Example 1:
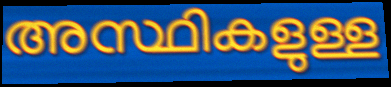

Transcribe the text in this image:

അസ്ഥികളുള്ള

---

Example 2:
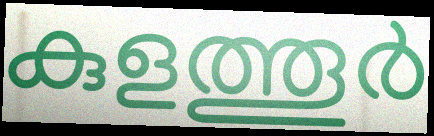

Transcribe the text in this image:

കുളത്തൂർ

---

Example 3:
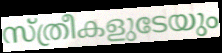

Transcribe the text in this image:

സ്ത്രീകളുടേയും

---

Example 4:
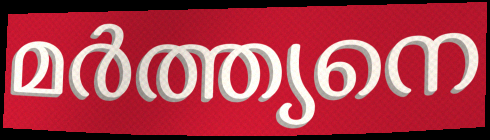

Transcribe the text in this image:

മർത്ത്യനെ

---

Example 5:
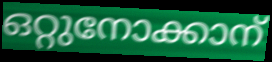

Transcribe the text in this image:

ഒറ്റുനോക്കാന്